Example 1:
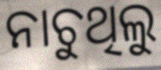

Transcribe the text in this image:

ନାଚୁଥିଲୁ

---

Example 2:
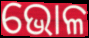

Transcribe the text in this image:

ଭୋଳ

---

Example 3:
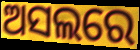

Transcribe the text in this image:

ଅସଲରେ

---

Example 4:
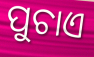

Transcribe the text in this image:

ପୁଚାଏ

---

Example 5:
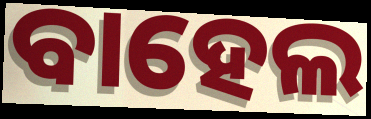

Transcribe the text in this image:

ବାହେଲ